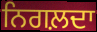
ਨਿਗਲ਼ਦਾ